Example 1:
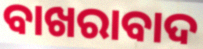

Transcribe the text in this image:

ବାଖରାବାଦ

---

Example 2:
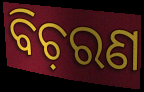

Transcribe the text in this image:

ବିଚ଼ରଣ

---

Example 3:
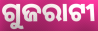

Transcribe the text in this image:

ଗୁଜରାଟୀ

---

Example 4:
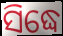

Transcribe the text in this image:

ସିଦ୍ଧେ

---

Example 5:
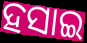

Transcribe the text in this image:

ହସାଇ